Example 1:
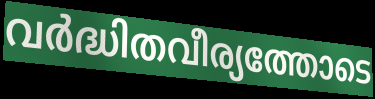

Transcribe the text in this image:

വർദ്ധിതവീര്യത്തോടെ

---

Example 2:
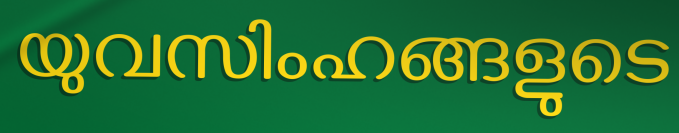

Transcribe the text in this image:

യുവസിംഹങ്ങളുടെ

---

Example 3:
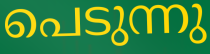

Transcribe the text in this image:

പെടുന്നു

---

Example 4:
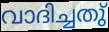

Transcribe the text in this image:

വാദിച്ചതു്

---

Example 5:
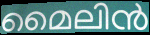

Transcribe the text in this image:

മൈലിൻ